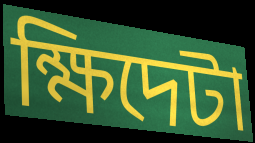
ক্ষিদেটা